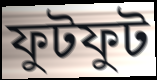
ফুটফুট